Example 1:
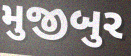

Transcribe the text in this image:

મુજીબુર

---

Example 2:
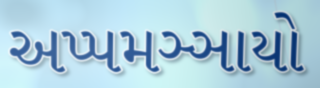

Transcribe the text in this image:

અપ્પમઞ્ઞાયો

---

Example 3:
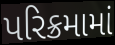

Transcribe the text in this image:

પરિક્રમામાં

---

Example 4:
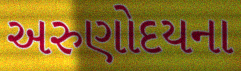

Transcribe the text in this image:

અરુણોદયના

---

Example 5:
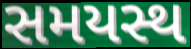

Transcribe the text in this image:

સમયસ્થ